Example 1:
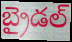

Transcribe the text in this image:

బ్రైడల్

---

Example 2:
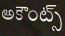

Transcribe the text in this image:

అకౌంట్స్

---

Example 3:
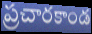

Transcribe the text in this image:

ప్రచారకాండ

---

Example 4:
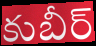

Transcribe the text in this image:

కుబీర్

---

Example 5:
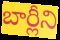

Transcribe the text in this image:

బార్లీని